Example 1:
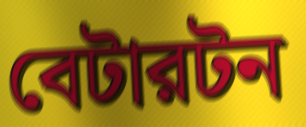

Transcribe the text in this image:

বেটারটন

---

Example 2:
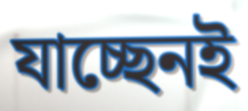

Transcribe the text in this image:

যাচ্ছেনই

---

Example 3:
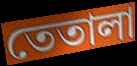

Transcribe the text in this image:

তেতালা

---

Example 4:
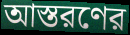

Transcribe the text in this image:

আস্তরণের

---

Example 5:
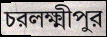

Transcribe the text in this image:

চরলক্ষ্মীপুর